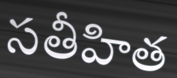
సతీహిత